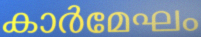
കാർമേഘം